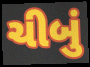
ચીબું